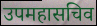
उपमहासचिव